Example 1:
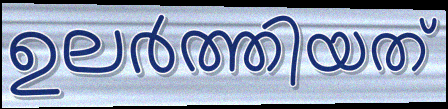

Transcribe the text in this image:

ഉലർത്തിയത്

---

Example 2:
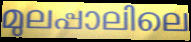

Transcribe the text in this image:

മുലപ്പാലിലെ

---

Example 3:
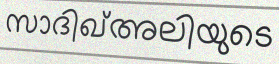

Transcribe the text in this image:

സാദിഖ്അലിയുടെ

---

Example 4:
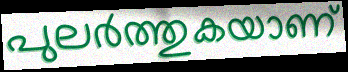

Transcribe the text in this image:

പുലർത്തുകയാണ്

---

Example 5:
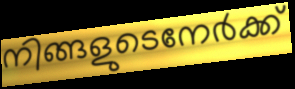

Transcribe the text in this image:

നിങ്ങളുടെനേർക്ക്